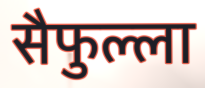
सैफुल्ला